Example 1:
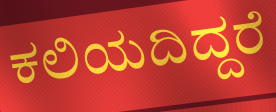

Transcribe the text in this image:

ಕಲಿಯದಿದ್ದರೆ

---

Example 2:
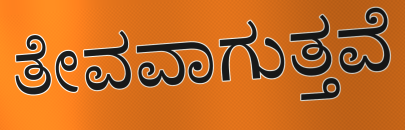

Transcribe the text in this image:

ತೇವವಾಗುತ್ತವೆ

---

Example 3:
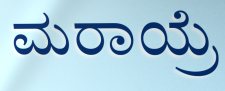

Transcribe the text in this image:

ಮರಾಯ್ರೆ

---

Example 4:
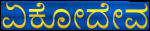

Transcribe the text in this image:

ಏಕೋದೇವ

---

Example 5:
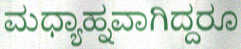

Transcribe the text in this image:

ಮಧ್ಯಾಹ್ನವಾಗಿದ್ದರೂ